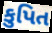
કુપિત